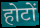
होटों